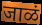
जाळं